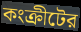
কংক্রীটের